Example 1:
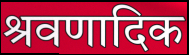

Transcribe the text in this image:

श्रवणादिक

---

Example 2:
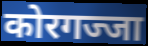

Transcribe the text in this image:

कोरगज्जा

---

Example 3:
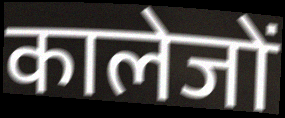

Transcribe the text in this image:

कालेजों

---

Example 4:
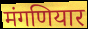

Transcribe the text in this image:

मंगणियार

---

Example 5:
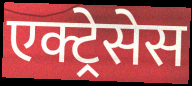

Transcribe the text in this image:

एक्ट्रेसेस